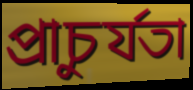
প্রাচুর্যতা